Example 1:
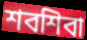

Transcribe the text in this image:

শবশিবা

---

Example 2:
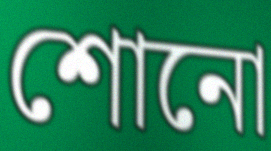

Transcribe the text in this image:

শোনো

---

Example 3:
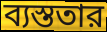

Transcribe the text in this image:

ব্যস্ততার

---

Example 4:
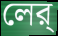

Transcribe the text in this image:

লের্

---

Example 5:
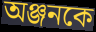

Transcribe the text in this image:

অঞ্জনকে